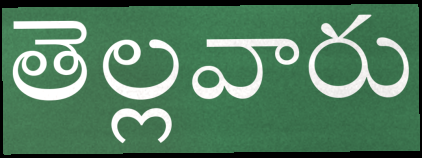
తెల్లవారు